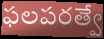
ఫలపరత్వే